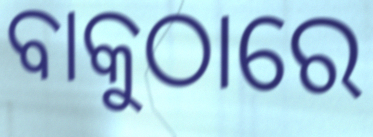
ବାକୁଠାରେ